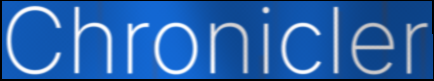
Chronicler